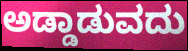
ಅಡ್ಡಾಡುವದು